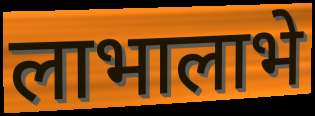
लाभालाभे